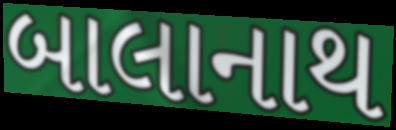
બાલાનાથ